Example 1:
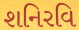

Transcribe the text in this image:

શનિરવિ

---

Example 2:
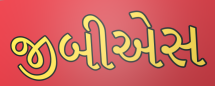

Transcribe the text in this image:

જીબીએસ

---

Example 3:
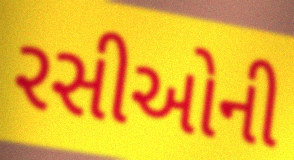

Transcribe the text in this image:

રસીઓની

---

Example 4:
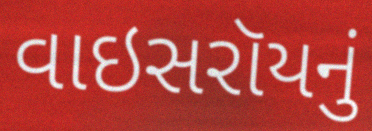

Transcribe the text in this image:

વાઇસરૉયનું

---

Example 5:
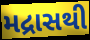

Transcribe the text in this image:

મદ્રાસથી